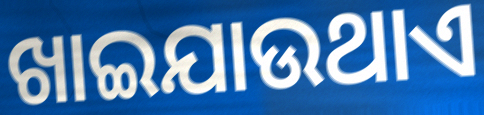
ଖାଇଯାଉଥାଏ